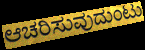
ಆಚರಿಸುವುದುಂಟು